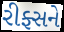
રીફ્સને